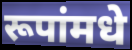
रूपांमधे